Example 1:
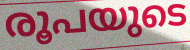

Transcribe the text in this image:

രൂപയുടെ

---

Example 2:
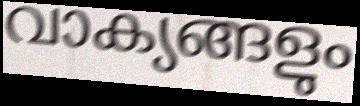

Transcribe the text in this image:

വാക്യങ്ങളും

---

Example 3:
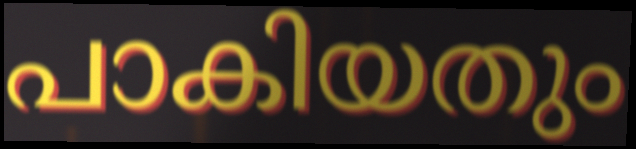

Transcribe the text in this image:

പാകിയതും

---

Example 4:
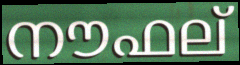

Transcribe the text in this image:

നൗഫല്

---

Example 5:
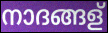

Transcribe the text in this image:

നാദങ്ങള്